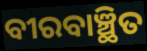
ବୀରବାଞ୍ଛିତ